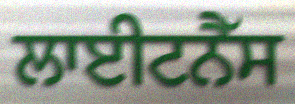
ਲਾਈਟਨੈੱਸ